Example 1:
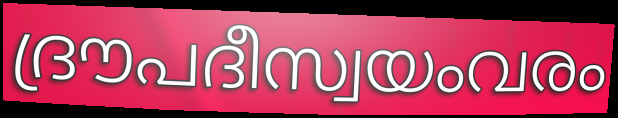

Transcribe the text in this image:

ദ്രൗപദീസ്വയംവരം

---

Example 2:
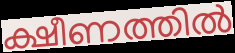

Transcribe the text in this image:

ക്ഷീണത്തിൽ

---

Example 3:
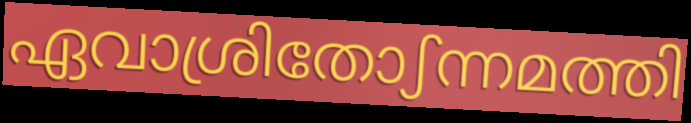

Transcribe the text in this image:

ഏവാശ്രിതോഽന്നമത്തി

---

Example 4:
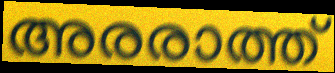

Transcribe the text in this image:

അരരാത്ത്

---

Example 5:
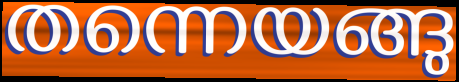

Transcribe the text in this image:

തന്നെയങ്ങു